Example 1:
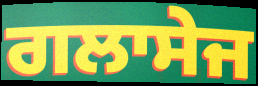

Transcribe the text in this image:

ਗਲਾਸੇਜ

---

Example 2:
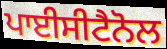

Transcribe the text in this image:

ਪਾਈਸੀਟੈਨੋਲ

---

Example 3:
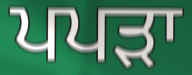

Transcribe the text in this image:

ਪਪੜਾ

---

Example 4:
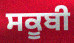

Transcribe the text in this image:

ਸਕੂਬੀ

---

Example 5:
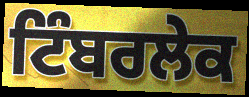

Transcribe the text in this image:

ਟਿੰਬਰਲੇਕ